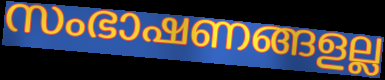
സംഭാഷണങ്ങളല്ല